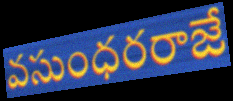
వసుంధరరాజే